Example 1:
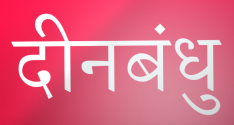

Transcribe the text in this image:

दीनबंधु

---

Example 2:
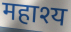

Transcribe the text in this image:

महाश्य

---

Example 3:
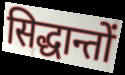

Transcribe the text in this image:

सिद्धान्तों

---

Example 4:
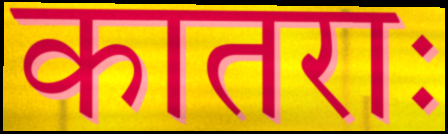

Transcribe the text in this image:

कातराः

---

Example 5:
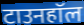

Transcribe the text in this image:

टाउनहॉल